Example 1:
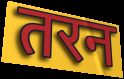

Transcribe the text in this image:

तरन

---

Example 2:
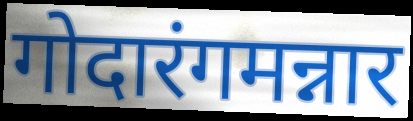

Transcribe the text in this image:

गोदारंगमन्नार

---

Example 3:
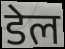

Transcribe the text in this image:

डेल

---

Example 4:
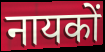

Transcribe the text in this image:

नायकों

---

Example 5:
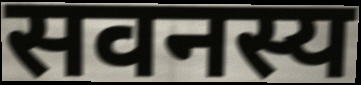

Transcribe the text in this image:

सवनस्य